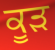
ਕੂੜ